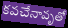
కవచేనావృతో